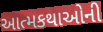
આત્મકથાઓની